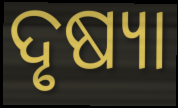
ଦୃଷ୍ୟା